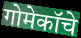
गोमेकॉचे